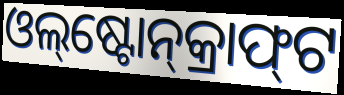
ଓଲ୍‌ଷ୍ଟୋନ୍‌କ୍ରାଫ୍‌ଟ